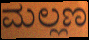
ಮಲ್ಲಣ